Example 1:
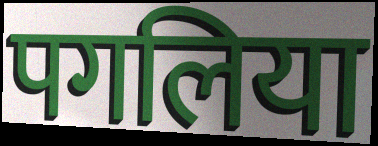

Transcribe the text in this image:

पगलिया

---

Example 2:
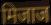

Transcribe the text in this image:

मिजाज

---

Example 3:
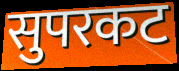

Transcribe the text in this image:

सुपरकट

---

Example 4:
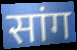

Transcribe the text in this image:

सांग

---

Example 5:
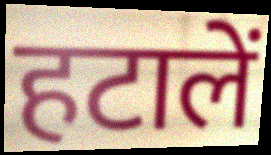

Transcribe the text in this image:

हटालें